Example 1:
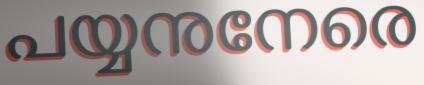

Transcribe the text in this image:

പയ്യനുനേരെ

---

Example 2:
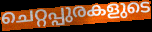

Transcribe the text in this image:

ചെറ്റപ്പുരകളുടെ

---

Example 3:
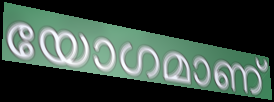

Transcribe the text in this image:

യോഗമാണ്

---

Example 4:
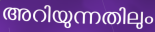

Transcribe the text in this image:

അറിയുന്നതിലും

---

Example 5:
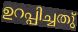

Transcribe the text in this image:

ഉറപ്പിച്ചതു്